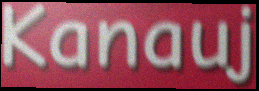
Kanauj